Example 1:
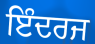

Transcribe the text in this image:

ਇੰਦਰਜ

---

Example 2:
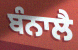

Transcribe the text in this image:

ਬੰਨਾਲੈ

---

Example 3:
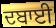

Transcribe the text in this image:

ਦਬਾਈ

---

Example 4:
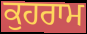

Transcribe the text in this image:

ਕੁਹਰਾਮ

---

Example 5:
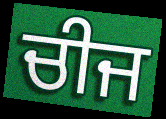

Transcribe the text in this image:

ਚੀਜ